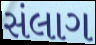
સંલાગ